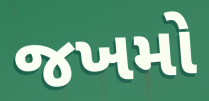
જખમો